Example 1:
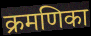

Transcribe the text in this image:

क्रमणिका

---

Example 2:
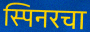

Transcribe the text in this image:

स्पिनरचा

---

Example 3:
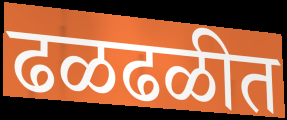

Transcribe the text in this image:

ढळढळीत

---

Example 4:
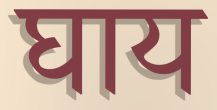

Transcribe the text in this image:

घाय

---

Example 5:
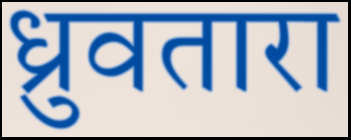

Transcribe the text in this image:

ध्रुवतारा